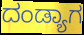
ದಂಡ್ಯಾಗ